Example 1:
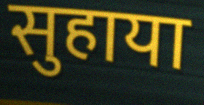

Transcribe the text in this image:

सुहाया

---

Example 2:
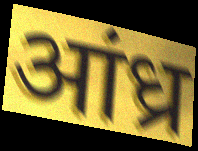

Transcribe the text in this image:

आंध्र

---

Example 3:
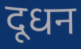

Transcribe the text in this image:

दूधन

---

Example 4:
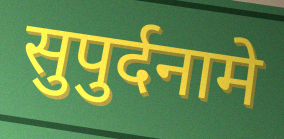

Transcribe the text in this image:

सुपुर्दनामे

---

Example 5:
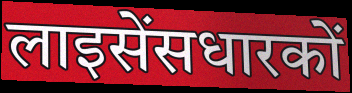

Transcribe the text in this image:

लाइसेंसधारकों